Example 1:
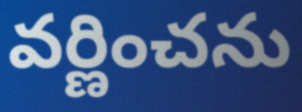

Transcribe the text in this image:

వర్ణించను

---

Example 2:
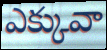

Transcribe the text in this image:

ఎక్కువా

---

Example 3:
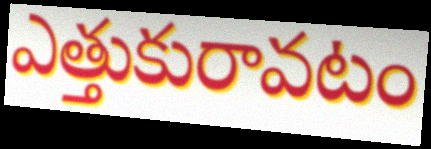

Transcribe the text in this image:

ఎత్తుకురావటం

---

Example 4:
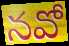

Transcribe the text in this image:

నవో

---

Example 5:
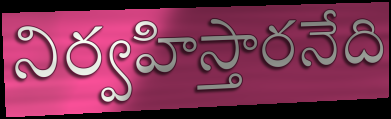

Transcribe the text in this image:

నిర్వహిస్తారనేది